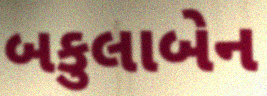
બકુલાબેન